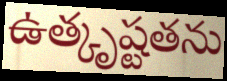
ఉత్కృష్టతను